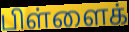
பிள்ளைக்